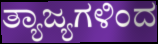
ತ್ಯಾಜ್ಯಗಳಿಂದ